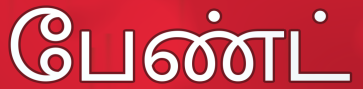
பேண்ட்